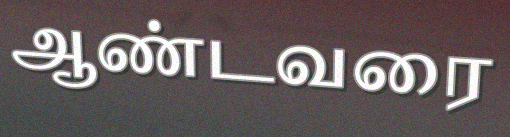
ஆண்டவரை